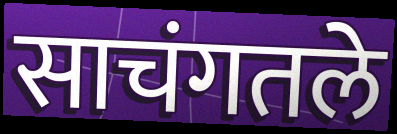
साचंगतले